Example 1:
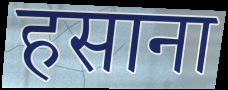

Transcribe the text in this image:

हसाना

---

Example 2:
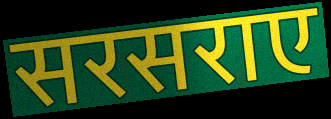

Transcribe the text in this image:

सरसराए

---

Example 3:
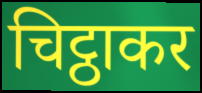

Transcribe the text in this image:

चिट्ठाकर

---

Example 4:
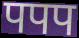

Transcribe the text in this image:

पपप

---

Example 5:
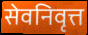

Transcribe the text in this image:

सेवनिवृत्त